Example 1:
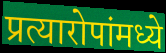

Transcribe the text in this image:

प्रत्यारोपांमध्ये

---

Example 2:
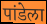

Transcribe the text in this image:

पांडेला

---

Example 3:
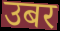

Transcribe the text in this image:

उबर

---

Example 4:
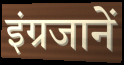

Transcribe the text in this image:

इंग्रजानें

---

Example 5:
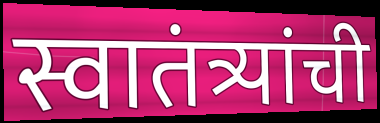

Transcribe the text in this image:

स्वातंत्र्यांची